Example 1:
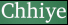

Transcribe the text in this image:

Chhiye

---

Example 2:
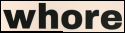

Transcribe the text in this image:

whore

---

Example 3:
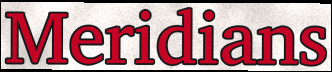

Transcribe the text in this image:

Meridians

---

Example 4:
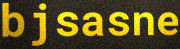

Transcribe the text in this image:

bjsasne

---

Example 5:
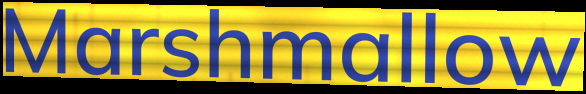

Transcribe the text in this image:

Marshmallow